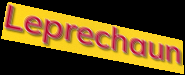
Leprechaun